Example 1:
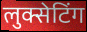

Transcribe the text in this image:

लुक्सेटिंग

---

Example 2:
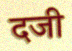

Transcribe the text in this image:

दजी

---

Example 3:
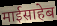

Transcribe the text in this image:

माईसाहेब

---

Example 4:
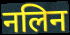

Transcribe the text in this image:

नलिन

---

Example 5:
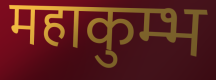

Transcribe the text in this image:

महाकुम्भ